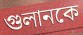
গুলানকে